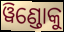
ୱିଣ୍ଡୋକୁ